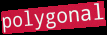
polygonal